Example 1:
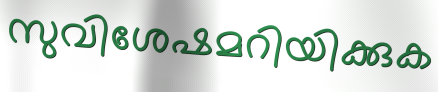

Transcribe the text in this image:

സുവിശേഷമറിയിക്കുക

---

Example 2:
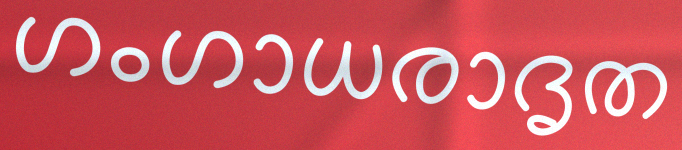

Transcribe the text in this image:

ഗംഗാധരാദൃത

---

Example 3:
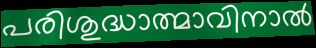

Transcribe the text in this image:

പരിശുദ്ധാത്മാവിനാൽ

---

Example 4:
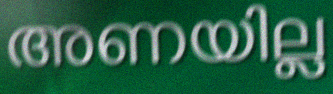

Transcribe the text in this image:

അണയില്ല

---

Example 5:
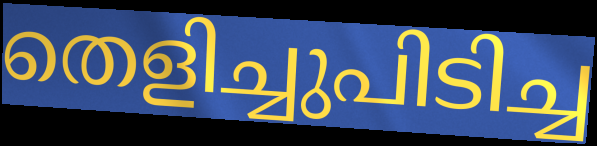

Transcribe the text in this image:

തെളിച്ചുപിടിച്ച